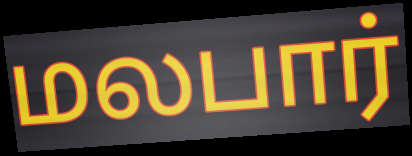
மலபார்